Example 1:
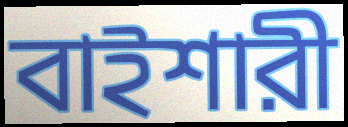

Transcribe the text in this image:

বাইশারী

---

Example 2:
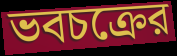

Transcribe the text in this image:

ভবচক্রের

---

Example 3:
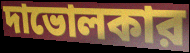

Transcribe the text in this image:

দাভোলকার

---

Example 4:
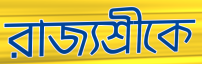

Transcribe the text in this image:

রাজ্যশ্রীকে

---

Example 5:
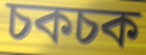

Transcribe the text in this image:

চকচক